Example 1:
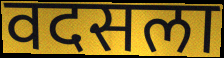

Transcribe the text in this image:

वदसला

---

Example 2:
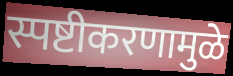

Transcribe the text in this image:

स्पष्टीकरणामुळे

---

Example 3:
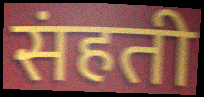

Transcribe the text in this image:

संहती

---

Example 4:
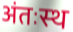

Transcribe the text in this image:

अंतःस्थ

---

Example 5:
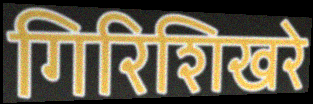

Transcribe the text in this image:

गिरिशिखरे